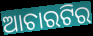
ଆଚାରଟିର